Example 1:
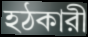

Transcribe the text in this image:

হঠকারী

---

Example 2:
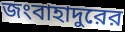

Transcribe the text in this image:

জংবাহাদুরের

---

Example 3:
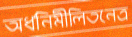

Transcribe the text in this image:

অর্ধনিমীলিতনেত্র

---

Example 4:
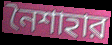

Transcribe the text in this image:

নৈশাহার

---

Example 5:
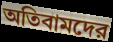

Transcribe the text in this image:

অতিবামদের